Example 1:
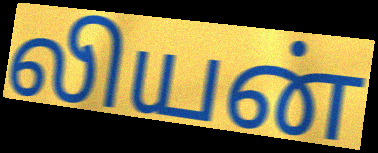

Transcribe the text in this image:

லியன்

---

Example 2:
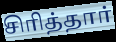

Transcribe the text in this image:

சிரித்தார்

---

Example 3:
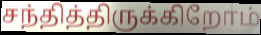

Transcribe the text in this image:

சந்தித்திருக்கிறோம்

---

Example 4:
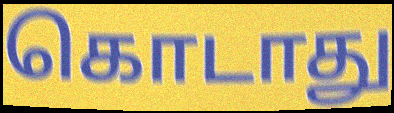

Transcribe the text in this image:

கொடாது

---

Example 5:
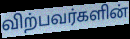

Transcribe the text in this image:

விற்பவர்களின்